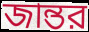
জান্তর